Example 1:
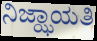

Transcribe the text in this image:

ನಿಜ್ಝಾಯತಿ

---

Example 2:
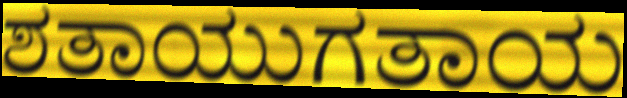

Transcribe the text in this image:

ಶತಾಯುಗತಾಯ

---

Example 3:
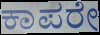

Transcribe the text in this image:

ಕಾಪರೇ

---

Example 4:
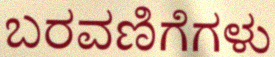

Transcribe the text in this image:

ಬರವಣಿಗೆಗಳು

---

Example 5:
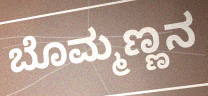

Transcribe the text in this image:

ಬೊಮ್ಮಣ್ಣನ